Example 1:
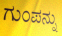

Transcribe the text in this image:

ಗುಂಪನ್ನು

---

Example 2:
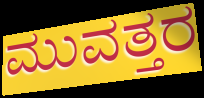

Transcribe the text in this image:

ಮುವತ್ತರ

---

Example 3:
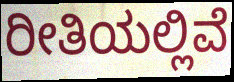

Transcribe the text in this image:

ರೀತಿಯಲ್ಲಿವೆ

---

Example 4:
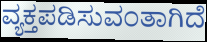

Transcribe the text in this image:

ವ್ಯಕ್ತಪಡಿಸುವಂತಾಗಿದೆ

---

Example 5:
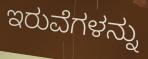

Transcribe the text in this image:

ಇರುವೆಗಳನ್ನು